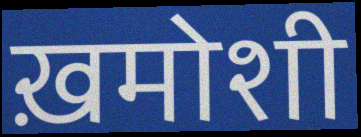
ख़मोशी